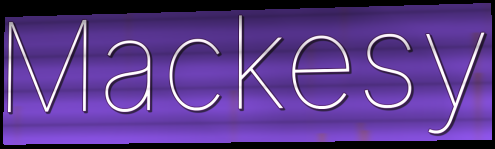
Mackesy